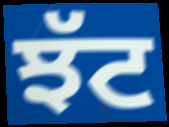
ਝੱਟ